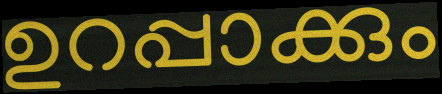
ഉറപ്പാക്കും